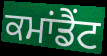
ਕਮਾਂਡੈਂਟ